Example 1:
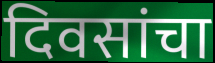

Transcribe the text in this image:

दिवसांचा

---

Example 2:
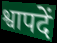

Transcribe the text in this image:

श्वापदें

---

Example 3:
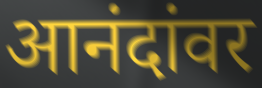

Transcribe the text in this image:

आनंदांवर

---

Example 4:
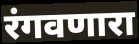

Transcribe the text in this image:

रंगवणारा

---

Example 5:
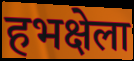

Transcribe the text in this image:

हभक्षेला